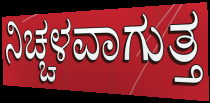
ನಿಚ್ಚಳವಾಗುತ್ತ